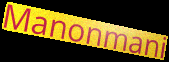
Manonmani